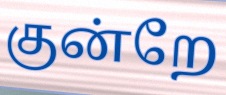
குன்றே